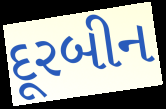
દૂરબીન